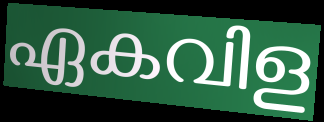
ഏകവിള